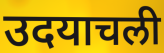
उदयाचली